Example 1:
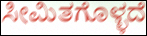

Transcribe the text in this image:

ಸೀಮಿತಗೊಳ್ಳದೆ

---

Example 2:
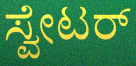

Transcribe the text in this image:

ಸ್ವೇಟರ್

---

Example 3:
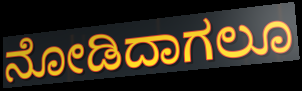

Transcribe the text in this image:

ನೋಡಿದಾಗಲೂ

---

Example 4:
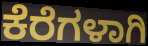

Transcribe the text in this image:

ಕೆರೆಗಳಾಗಿ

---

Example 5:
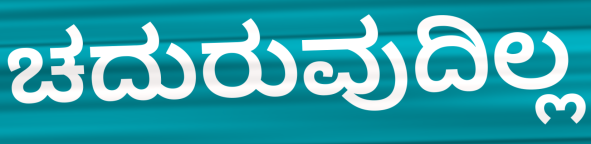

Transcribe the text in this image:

ಚದುರುವುದಿಲ್ಲ